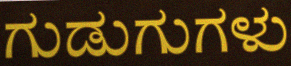
ಗುಡುಗುಗಳು